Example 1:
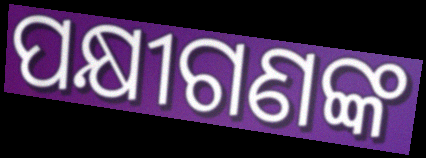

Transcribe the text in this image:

ପକ୍ଷୀଗଣଙ୍କ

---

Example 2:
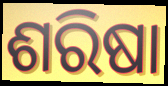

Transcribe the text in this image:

ଶରିଷା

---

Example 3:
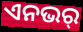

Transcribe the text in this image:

ଏନଭର୍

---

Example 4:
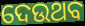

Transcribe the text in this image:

ଦେଉଥବ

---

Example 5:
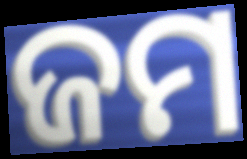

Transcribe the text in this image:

ଜମ